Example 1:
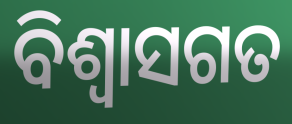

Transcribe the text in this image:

ବିଶ୍ଵାସଗତ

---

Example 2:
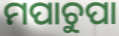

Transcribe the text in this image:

ମପାଚୁପା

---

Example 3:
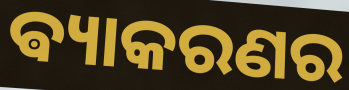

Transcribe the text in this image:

ଵ୍ୟାକରଣର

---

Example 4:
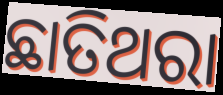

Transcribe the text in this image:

ଛାତିଥରା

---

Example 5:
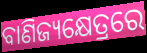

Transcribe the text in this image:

ବାଣିଜ୍ୟକ୍ଷେତ୍ରରେ